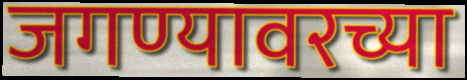
जगण्यावरच्या